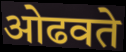
ओढवते